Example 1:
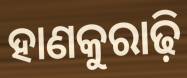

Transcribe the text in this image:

ହାଣକୁରାଢ଼ି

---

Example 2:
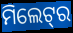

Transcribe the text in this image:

ମିଲେଟ୍‌ର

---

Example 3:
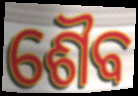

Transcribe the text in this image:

ଶୈବ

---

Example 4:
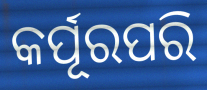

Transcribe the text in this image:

କର୍ପୂରପରି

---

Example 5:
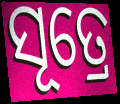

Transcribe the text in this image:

ସୂତ୍ରେ